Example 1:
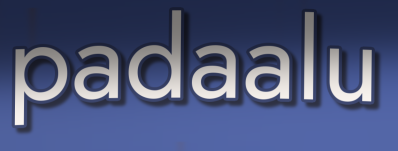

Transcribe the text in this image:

padaalu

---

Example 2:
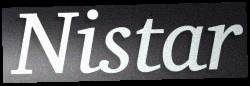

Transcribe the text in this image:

Nistar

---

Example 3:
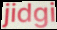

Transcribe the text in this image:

jidgi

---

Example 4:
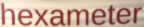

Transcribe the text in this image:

hexameter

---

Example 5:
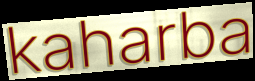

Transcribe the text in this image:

kaharba